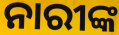
ନାରୀଙ୍କ